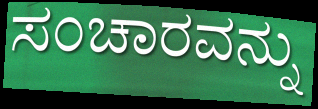
ಸಂಚಾರವನ್ನು